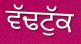
ਵੱਢਟੁੱਕ